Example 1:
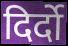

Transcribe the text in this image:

दिर्दो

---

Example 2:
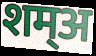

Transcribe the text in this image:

शम्अ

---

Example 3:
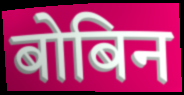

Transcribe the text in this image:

बोबिन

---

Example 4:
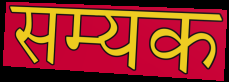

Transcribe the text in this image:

सम्यक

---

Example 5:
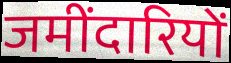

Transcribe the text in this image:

जमींदारियों